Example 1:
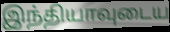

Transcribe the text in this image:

இந்தியாவுடைய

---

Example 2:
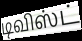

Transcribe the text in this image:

டிவிஸ்ட்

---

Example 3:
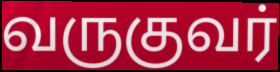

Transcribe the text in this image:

வருகுவர்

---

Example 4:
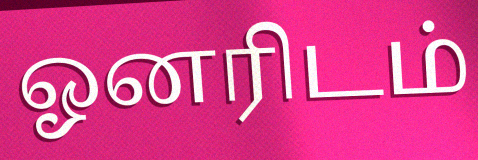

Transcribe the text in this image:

ஓனரிடம்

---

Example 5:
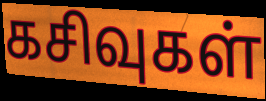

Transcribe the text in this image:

கசிவுகள்